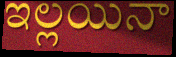
ఇల్లయినా